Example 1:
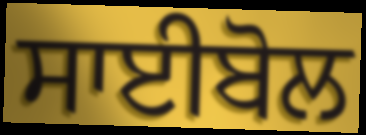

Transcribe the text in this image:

ਸਾਈਬੋਲ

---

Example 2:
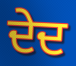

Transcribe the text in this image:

ਦੇਦ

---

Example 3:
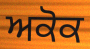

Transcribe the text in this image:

ਅਕੋਕ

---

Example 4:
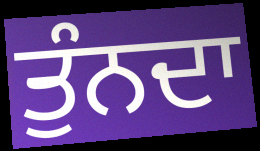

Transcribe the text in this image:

ਤੁੰਨਦਾ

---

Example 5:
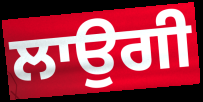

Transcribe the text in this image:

ਲਾਉਗੀ